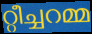
റ്റീച്ചറമ്മ